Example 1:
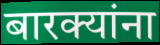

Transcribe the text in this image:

बारक्यांना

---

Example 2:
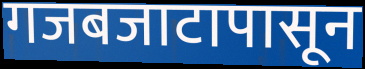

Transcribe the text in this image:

गजबजाटापासून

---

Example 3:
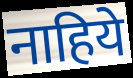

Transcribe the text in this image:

नाहिये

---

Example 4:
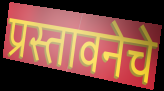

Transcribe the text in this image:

प्रस्तावनेचे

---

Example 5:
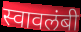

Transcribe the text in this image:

स्वावलंबी